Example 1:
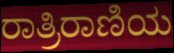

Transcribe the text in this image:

ರಾತ್ರಿರಾಣಿಯ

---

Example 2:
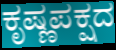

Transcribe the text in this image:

ಕೃಷ್ಣಪಕ್ಷದ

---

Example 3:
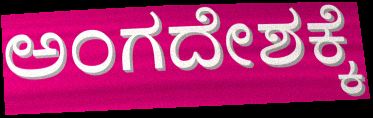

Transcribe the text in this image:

ಅಂಗದೇಶಕ್ಕೆ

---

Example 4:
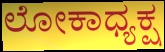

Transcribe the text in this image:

ಲೋಕಾಧ್ಯಕ್ಷ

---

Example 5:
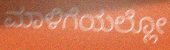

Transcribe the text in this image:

ಮಾಳಿಗೆಯಲ್ಲೋ